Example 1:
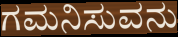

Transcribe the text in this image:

ಗಮನಿಸುವನು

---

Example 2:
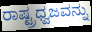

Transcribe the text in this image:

ರಾಷ್ಟ್ರಧ್ವಜವನ್ನು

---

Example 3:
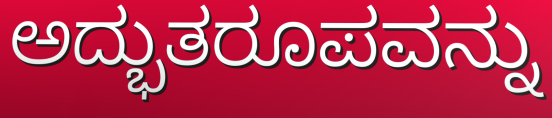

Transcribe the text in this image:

ಅದ್ಭುತರೂಪವನ್ನು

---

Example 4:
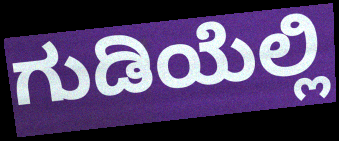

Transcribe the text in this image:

ಗುಡಿಯೆಲ್ಲಿ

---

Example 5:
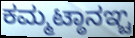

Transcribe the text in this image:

ಕಮ್ಮಟ್ಠಾನಞ್ಚ